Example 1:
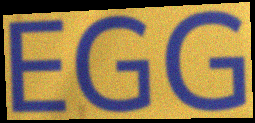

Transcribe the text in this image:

EGG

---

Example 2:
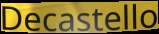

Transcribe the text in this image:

Decastello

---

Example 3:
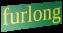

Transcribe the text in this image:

furlong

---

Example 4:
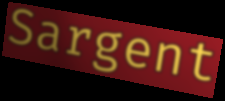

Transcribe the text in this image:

Sargent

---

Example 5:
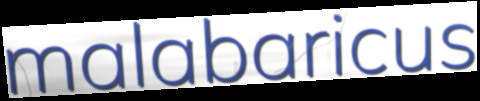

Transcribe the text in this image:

malabaricus